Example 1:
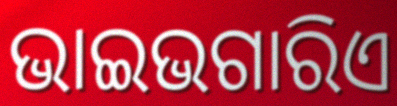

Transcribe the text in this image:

ଭାଇଭଗାରିଏ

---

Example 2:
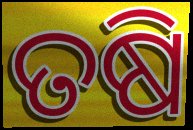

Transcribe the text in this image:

ତଷି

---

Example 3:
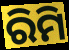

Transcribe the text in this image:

ରିମି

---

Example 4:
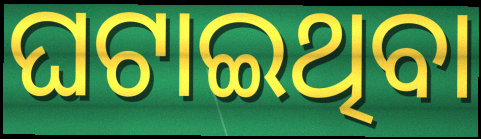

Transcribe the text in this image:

ଘଟାଇଥିବା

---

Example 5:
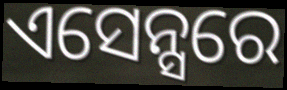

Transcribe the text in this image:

ଏସେନ୍ସରେ